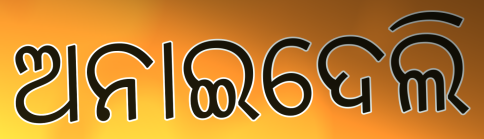
ଅନାଇଦେଲି